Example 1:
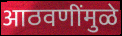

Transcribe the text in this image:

आठवणींमुळे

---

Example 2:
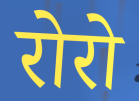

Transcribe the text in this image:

रोरो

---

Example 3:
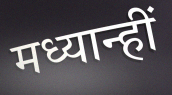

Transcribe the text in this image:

मध्यान्हीं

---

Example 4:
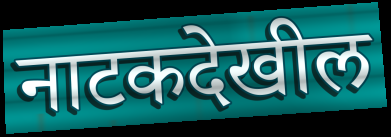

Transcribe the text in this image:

नाटकदेखील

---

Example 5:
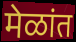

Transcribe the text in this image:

मेळांत